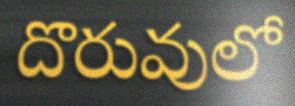
దొరువులో